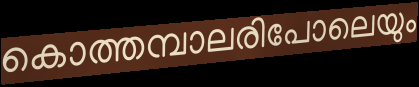
കൊത്തമ്പാലരിപോലെയും